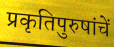
प्रकृतिपुरुषांचें